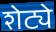
शेट्ये